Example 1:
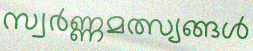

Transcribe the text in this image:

സ്വർണ്ണമത്സ്യങ്ങൾ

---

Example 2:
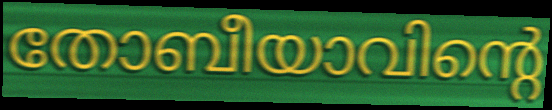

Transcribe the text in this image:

തോബീയാവിന്റെ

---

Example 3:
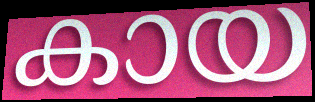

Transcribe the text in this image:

കായ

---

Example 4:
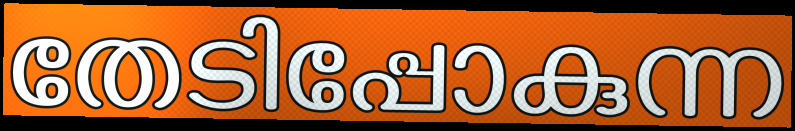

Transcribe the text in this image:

തേടിപ്പോകുന്ന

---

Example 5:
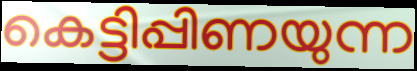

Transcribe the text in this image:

കെട്ടിപ്പിണയുന്ന